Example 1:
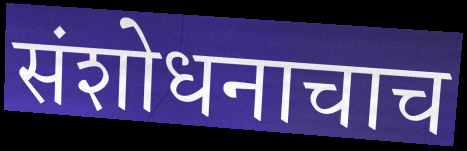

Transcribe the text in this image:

संशोधनाचाच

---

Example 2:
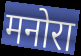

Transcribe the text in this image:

मनोरा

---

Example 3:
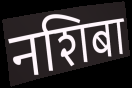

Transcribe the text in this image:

नशिबा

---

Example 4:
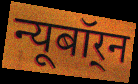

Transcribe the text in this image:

न्यूबॉर्न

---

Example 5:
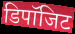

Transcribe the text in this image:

डिपॉजिट